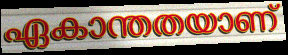
ഏകാന്തതയാണ്